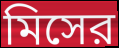
মিসের